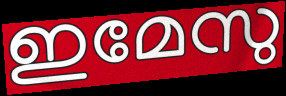
ഇമേസു